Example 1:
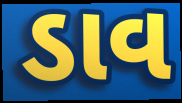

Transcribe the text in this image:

ડાવ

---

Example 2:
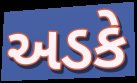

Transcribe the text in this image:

અડકે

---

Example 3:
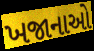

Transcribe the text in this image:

ખજાનાઓ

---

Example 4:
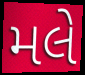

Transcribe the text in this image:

મલે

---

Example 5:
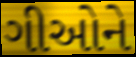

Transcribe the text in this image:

ગીઓને